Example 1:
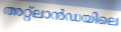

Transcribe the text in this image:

അറ്റ്ലാൻഡയിലെ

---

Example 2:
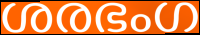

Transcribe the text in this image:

ശരഭംഗ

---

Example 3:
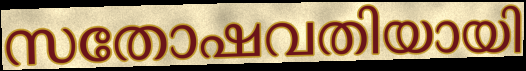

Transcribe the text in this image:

സതോഷവതിയായി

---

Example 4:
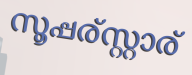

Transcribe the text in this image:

സൂപ്പര്സ്റ്റാര്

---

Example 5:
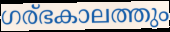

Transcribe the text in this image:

ഗര്ഭകാലത്തും